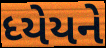
ધ્યેયને